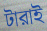
টারাই